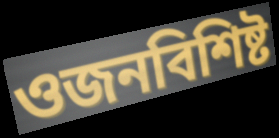
ওজনবিশিষ্ট